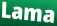
Lama